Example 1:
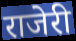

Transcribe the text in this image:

राजेरी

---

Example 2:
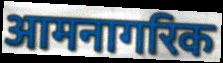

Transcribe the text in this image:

आमनागरिक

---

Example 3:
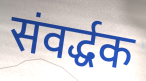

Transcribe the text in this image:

संवर्द्धक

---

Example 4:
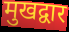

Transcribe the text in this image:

मुखद्वार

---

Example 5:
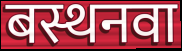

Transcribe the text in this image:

बस्थनवा